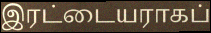
இரட்டையராகப்